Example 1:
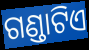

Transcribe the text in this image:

ଗଣ୍ଡାଟିଏ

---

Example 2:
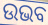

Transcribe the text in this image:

ଉଭବ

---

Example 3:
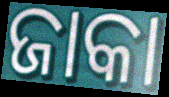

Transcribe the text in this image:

ଜାକା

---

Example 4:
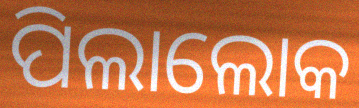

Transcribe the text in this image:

ପିଲାଲୋକ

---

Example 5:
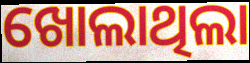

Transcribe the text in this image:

ଖୋଲାଥିଲା